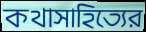
কথাসাহিত্যের